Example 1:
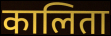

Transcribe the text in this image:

कालिता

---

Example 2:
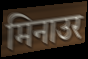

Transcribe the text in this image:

मिनाउर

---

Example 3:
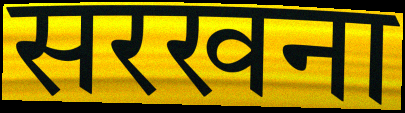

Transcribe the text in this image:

सरखना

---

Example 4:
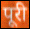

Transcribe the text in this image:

पूरी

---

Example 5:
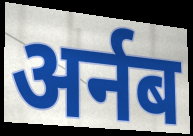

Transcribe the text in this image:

अर्नब